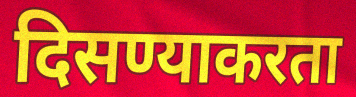
दिसण्याकरता